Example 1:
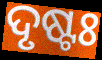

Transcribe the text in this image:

ଦୃଷ୍ଟଃ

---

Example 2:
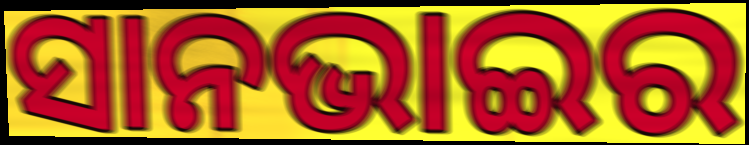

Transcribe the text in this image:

ସାନଭାଇର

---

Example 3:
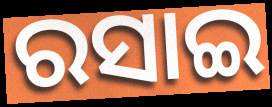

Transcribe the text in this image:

ରସାଇ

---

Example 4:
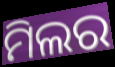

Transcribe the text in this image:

ମିଲର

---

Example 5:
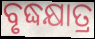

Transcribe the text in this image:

ବୃଦ୍ଧକ୍ଷାତ୍ର